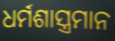
ଧର୍ମଶାସ୍ତ୍ରମାନ